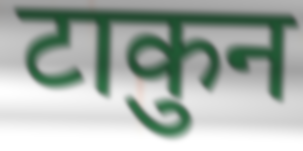
टाकुन